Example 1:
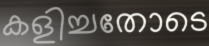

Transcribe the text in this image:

കളിച്ചതോടെ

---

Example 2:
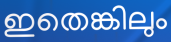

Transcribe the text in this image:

ഇതെങ്കിലും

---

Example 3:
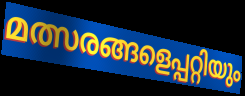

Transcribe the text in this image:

മത്സരങ്ങളെപ്പറ്റിയും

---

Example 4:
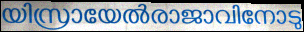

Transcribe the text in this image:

യിസ്രായേൽരാജാവിനോടു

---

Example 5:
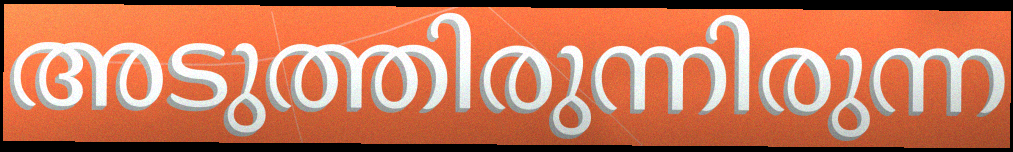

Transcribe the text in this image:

അടുത്തിരുന്നിരുന്ന